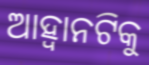
ଆହ୍ଵାନଟିକୁ